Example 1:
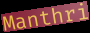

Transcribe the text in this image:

Manthri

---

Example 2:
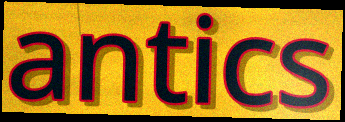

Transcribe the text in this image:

antics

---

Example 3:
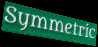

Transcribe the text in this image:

Symmetric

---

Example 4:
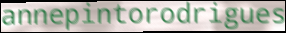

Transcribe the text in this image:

annepintorodrigues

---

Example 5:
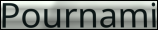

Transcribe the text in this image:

Pournami